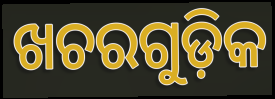
ଖଚରଗୁଡ଼ିକ